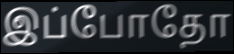
இப்போதோ